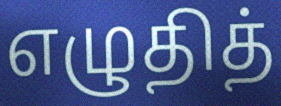
எழுதித்